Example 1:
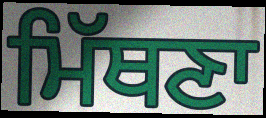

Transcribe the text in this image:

ਮਿੱਥਣਾ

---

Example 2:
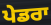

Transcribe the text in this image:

ਪੇਡਰਾ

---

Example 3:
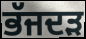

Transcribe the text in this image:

ਭੱਜਦੜ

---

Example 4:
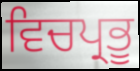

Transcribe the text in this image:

ਵਿਚਪ੍ਰਭੂ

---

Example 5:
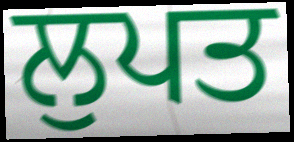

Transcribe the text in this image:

ਲੁਪਤ